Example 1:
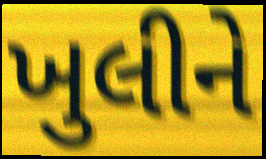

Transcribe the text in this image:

ખુલીને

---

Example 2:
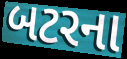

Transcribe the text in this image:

બટરના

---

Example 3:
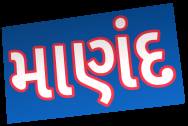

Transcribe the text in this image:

માણંદ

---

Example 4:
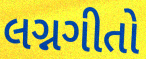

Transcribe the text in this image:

લગ્નગીતો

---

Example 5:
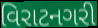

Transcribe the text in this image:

વિરાટનગરી